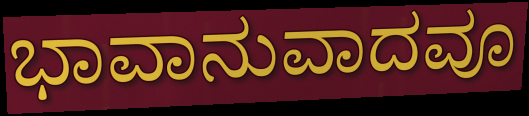
ಭಾವಾನುವಾದವೂ